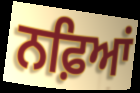
ਨਫ਼ਿਆਂ